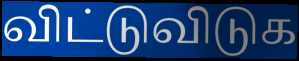
விட்டுவிடுக